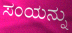
ಸಂಯನ್ನು